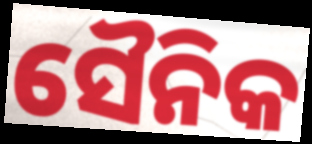
ସୈନିକ